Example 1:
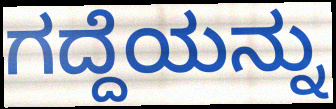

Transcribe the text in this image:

ಗದ್ದೆಯನ್ನು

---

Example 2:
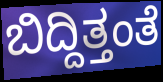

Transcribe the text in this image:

ಬಿದ್ದಿತ್ತಂತೆ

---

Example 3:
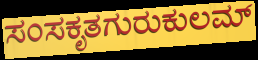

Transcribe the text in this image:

ಸಂಸಕೃತಗುರುಕುಲಮ್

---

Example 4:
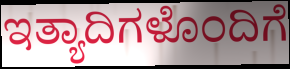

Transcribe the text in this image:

ಇತ್ಯಾದಿಗಳೊಂದಿಗೆ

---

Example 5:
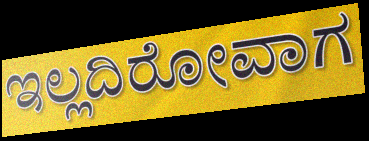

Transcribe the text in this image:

ಇಲ್ಲದಿರೋವಾಗ